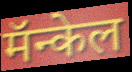
मॅन्केल